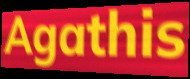
Agathis